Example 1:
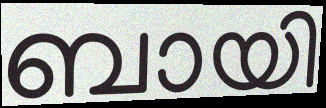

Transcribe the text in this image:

ബായി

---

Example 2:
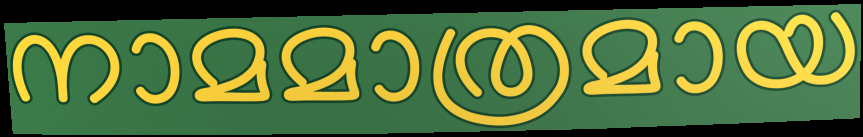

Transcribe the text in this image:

നാമമാത്രമായ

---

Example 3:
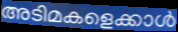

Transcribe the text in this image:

അടിമകളെക്കാൾ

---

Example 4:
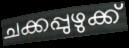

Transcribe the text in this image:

ചക്കപ്പുഴുക്ക്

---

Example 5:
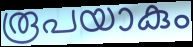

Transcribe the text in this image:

രൂപയാകും